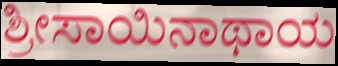
ಶ್ರೀಸಾಯಿನಾಥಾಯ